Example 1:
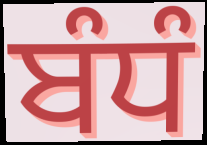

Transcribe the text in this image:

ਬੰਧੰ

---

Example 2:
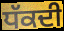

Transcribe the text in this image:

ਧੱਕਦੀ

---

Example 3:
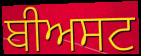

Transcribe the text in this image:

ਬੀਅਸਟ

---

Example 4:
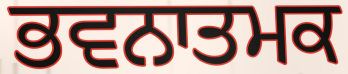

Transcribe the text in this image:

ਭਵਨਾਤਮਕ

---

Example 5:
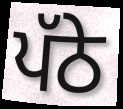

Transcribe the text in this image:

ਪੱਠੇ